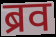
ब्रव